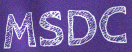
MSDC